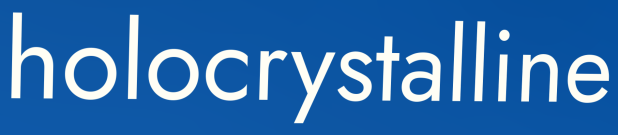
holocrystalline